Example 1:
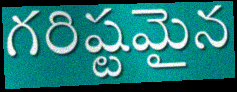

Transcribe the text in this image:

గరిష్టమైన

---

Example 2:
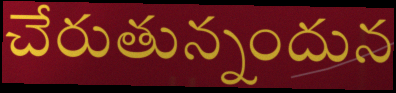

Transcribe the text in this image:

చేరుతున్నందున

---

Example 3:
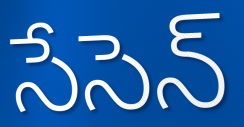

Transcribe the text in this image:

సేసెన్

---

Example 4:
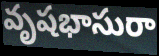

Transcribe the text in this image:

వృషభాసురా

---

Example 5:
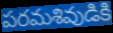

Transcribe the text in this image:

పరమశివుడికి